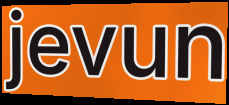
jevun